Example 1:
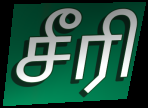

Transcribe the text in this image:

சீரி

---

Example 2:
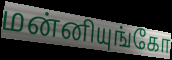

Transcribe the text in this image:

மன்னியுங்கோ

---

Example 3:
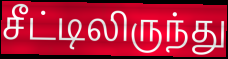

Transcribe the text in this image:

சீட்டிலிருந்து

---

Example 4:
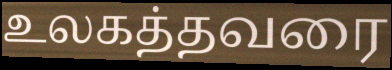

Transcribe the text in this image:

உலகத்தவரை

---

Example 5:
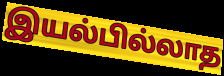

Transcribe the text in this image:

இயல்பில்லாத